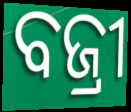
ବଜ୍ରୀ